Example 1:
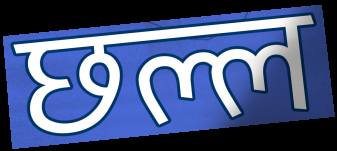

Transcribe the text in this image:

छल्ल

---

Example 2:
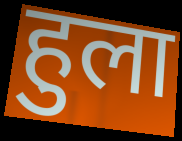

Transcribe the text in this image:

हुला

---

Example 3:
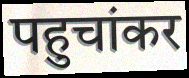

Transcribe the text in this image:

पहुचांकर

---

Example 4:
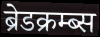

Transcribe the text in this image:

ब्रेडक्रम्ब्स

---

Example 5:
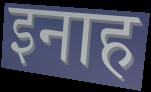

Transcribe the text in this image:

इनाह